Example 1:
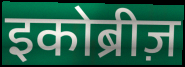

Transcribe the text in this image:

इकोब्रीज़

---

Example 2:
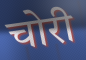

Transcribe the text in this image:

चोरी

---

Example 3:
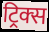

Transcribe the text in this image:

ट्रिक्‍स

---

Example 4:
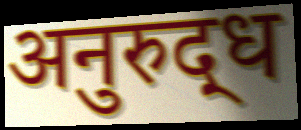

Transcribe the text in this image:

अनुरुद्ध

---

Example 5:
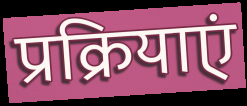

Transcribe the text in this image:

प्रक्रियाएं